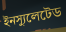
ইনস্যুলেটেড